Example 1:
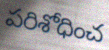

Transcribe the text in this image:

పరిశోధించ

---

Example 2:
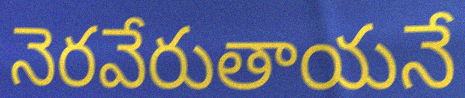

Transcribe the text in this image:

నెరవేరుతాయనే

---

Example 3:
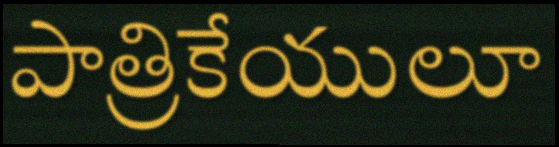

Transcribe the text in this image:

పాత్రికేయులూ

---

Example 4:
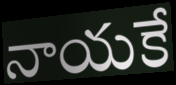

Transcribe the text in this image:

నాయకే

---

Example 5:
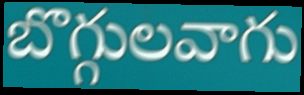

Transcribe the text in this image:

బొగ్గులవాగు